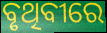
ବୃଥିବୀରେ